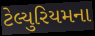
ટેલ્યુરિયમના